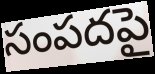
సంపదపై